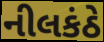
નીલકંઠે